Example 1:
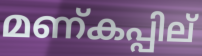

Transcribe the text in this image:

മണ്കപ്പില്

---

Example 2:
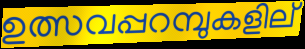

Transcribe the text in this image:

ഉത്സവപ്പറമ്പുകളില്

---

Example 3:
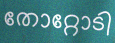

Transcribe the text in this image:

തോറ്റോടി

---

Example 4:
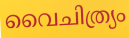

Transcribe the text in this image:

വൈചിത്ര്യം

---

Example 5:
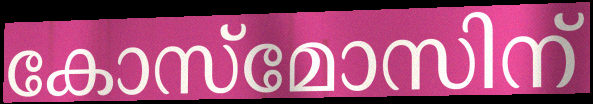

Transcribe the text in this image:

കോസ്മോസിന്